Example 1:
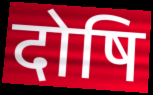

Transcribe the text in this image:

दोषि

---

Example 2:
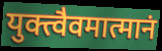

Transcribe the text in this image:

युक्त्वैवमात्मानं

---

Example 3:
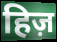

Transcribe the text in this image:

हिज़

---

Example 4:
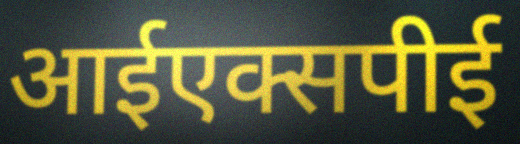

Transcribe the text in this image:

आईएक्सपीई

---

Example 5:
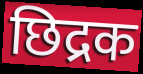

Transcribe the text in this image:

छिद्रक